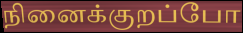
நினைக்குறப்போ